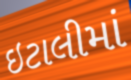
ઇટાલીમાં